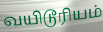
வயிடூரியம்